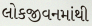
લોકજીવનમાંથી